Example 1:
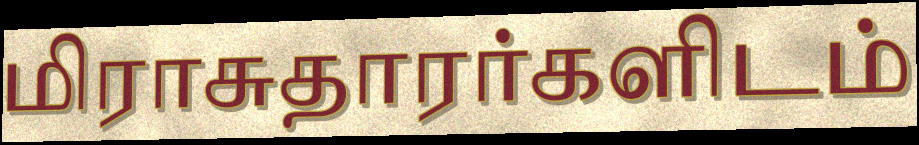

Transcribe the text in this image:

மிராசுதாரர்களிடம்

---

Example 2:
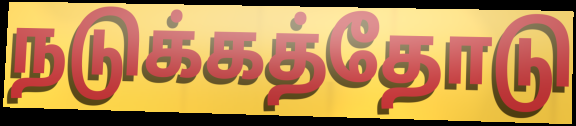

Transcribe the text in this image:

நடுக்கத்தோடு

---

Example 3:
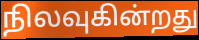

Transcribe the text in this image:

நிலவுகின்றது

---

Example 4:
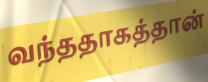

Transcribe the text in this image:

வந்ததாகத்தான்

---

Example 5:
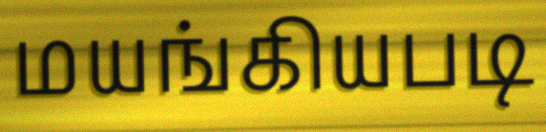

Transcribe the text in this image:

மயங்கியபடி